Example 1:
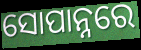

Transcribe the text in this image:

ସୋପାନ୍ନରେ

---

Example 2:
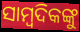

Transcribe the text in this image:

ସାମ୍ବଦିକଙ୍କୁ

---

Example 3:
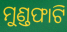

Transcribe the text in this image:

ମୁଣ୍ଡଫାଟି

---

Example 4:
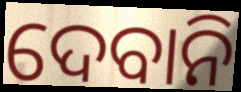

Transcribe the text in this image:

ଦେବାନି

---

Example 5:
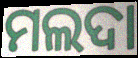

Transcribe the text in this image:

ମଲଦା